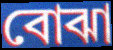
বোঝা